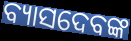
ବ୍ୟାସଦେବଙ୍କ